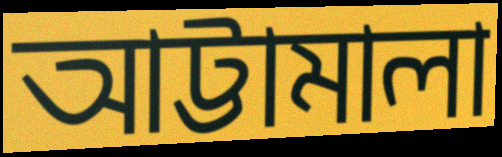
আট্টামালা